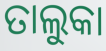
ତାଲୁକା